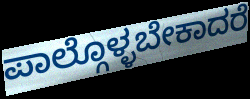
ಪಾಲ್ಗೊಳ್ಳಬೇಕಾದರೆ